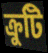
ক্ৰুটি